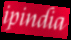
ipindia